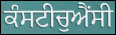
ਕੰਸਟੀਚੁਐਂਸੀ